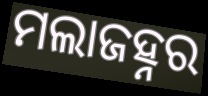
ମଲାଜହ୍ନର